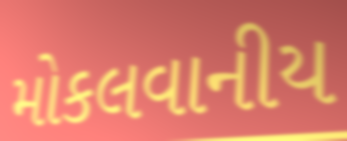
મોકલવાનીય